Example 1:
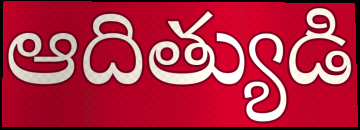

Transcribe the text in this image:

ఆదిత్యుడి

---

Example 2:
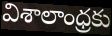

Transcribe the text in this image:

విశాలాంధ్రకు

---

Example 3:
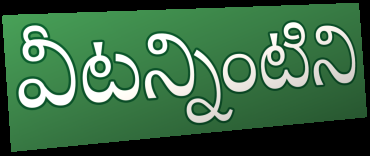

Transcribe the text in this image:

వీటన్నింటిని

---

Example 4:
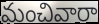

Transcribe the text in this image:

మంచివారా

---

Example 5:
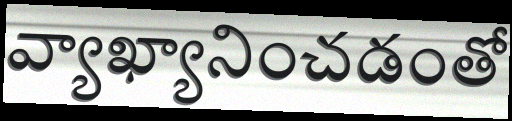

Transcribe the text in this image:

వ్యాఖ్యానించడంతో